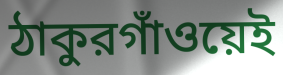
ঠাকুরগাঁওয়েই